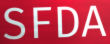
SFDA